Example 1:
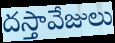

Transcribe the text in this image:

దస్తావేజులు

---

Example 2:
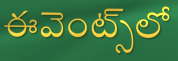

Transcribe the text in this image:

ఈవెంట్స్‌లో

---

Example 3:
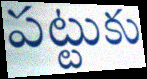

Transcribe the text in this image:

పట్టుకు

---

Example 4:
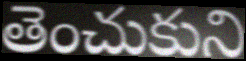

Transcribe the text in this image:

తెంచుకుని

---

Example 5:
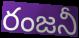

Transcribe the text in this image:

రంజనీ